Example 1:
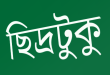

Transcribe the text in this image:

ছিদ্রটুকু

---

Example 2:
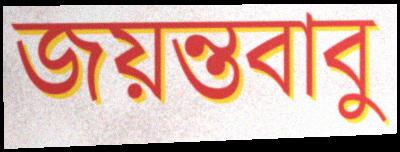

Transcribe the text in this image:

জয়ন্তবাবু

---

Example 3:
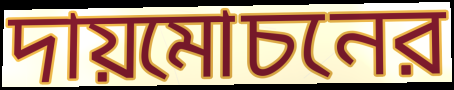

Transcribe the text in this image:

দায়মোচনের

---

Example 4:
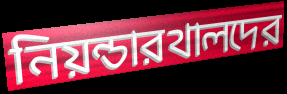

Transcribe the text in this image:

নিয়ন্ডারথালদের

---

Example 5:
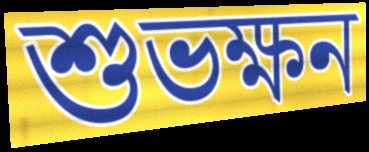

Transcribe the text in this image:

শুভক্ষন